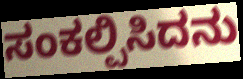
ಸಂಕಲ್ಪಿಸಿದನು